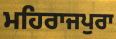
ਮਹਿਰਾਜਪੁਰਾ